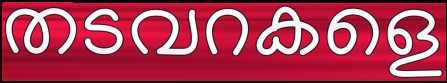
തടവറകളെ